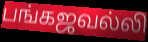
பங்கஜவல்லி